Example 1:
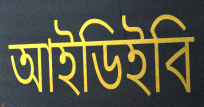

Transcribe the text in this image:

আইডিইবি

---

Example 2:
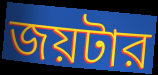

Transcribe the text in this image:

জয়টার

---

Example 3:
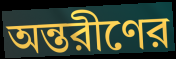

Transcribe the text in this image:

অন্তরীণের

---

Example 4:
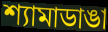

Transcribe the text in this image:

শ্যামাডাঙা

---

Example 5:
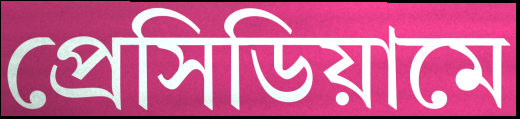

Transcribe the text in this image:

প্রেসিডিয়ামে